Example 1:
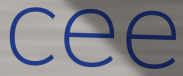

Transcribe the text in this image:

cee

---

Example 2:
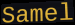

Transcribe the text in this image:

Samel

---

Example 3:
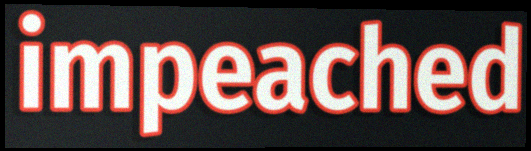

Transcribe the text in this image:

impeached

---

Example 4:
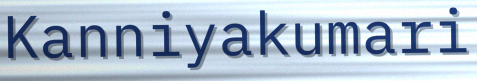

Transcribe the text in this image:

Kanniyakumari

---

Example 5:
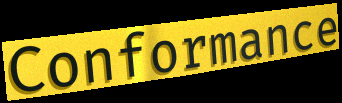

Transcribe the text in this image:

Conformance